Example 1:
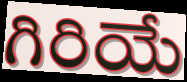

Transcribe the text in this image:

గిరియే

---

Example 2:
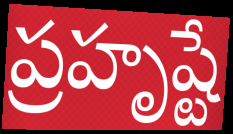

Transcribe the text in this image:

ప్రహృష్టే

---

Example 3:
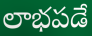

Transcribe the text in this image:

లాభపడే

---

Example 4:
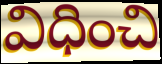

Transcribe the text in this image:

విధించి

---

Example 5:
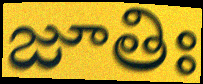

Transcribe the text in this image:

జూతిః